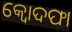
କ୍ବୋଦଫା